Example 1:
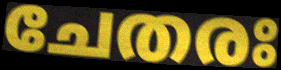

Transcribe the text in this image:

ചേതരഃ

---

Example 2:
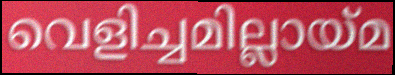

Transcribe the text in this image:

വെളിച്ചമില്ലായ്മ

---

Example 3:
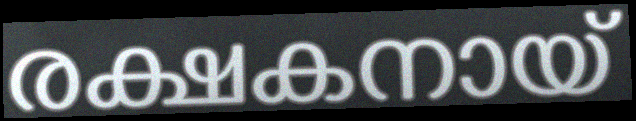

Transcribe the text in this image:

രക്ഷകനായ്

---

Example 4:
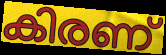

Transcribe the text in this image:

കിരണ്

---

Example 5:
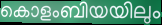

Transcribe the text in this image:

കൊളംബിയയിലും